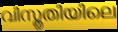
വിസ്തൃതിയിലെ